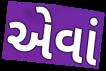
એવાં